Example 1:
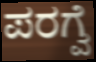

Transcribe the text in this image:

ಪರಗ್ವೆ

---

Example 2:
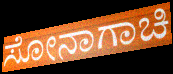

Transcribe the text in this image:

ಸೋನಾಗಾಚಿ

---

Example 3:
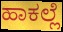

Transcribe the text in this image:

ಹಾಕಲ್ಲೆ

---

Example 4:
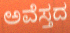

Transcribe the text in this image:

ಅವೆಸ್ತದ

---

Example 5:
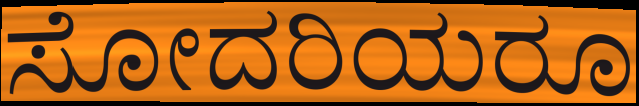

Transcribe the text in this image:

ಸೋದರಿಯರೂ